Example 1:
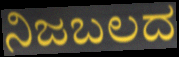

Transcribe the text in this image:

ನಿಜಬಲದ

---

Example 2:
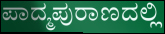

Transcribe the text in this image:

ಪಾದ್ಮಪುರಾಣದಲ್ಲಿ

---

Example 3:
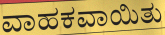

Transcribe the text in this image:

ವಾಹಕವಾಯಿತು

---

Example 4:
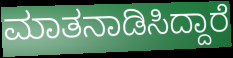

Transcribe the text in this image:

ಮಾತನಾಡಿಸಿದ್ದಾರೆ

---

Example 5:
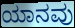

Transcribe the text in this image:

ಯಾನವು